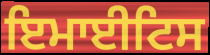
ਇਮਾਈਟਿਸ